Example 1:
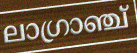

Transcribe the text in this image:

ലാഗ്രാഞ്ച്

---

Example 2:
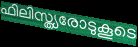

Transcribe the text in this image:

ഫിലിസ്ത്യരോടുകൂടെ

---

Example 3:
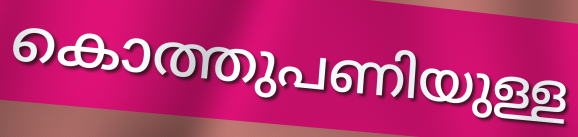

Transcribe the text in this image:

കൊത്തുപണിയുള്ള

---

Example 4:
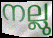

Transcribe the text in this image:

നല്ലു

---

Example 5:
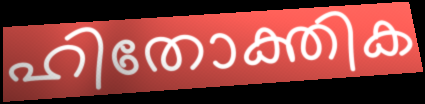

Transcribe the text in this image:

ഹിതോക്തിക